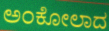
ಅಂಕೋಲಾದ